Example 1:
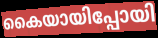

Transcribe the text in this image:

കൈയായിപ്പോയി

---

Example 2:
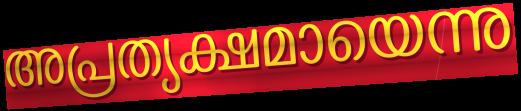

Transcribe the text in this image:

അപ്രത്യക്ഷമായെന്നു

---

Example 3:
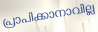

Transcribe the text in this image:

പ്രാപിക്കാനാവില്ല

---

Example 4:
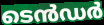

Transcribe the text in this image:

ടെൻഡർ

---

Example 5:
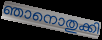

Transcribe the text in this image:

ഞാനൊതുക്കി